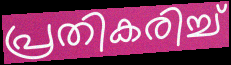
പ്രതികരിച്ച്